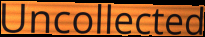
Uncollected